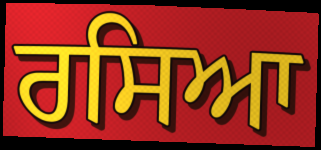
ਰਸਿਆ